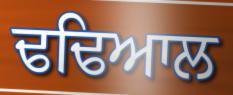
ਢਢਿਆਲ